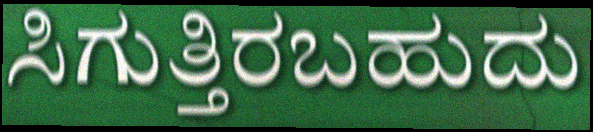
ಸಿಗುತ್ತಿರಬಹುದು